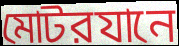
মোটরযানে